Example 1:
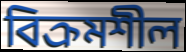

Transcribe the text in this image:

বিক্রমশীল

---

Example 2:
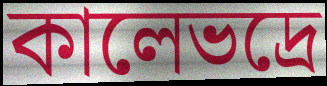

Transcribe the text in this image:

কালেভদ্রে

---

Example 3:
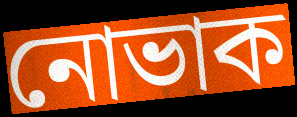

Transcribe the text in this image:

নোভাক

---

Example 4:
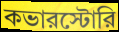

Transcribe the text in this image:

কভারস্টোরি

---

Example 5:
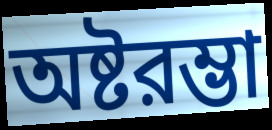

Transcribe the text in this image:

অষ্টরম্ভা